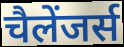
चैलेंजर्स